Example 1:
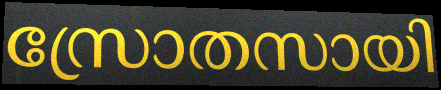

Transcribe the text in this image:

സ്രോതസായി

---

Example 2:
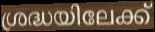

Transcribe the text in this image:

ശ്രദ്ധയിലേക്ക്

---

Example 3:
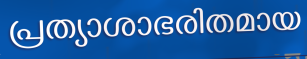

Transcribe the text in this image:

പ്രത്യാശാഭരിതമായ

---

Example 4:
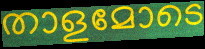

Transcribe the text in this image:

താളമോടെ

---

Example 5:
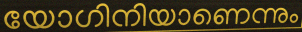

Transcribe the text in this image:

യോഗിനിയാണെന്നും